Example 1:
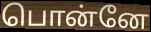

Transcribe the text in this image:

பொன்னே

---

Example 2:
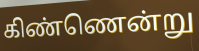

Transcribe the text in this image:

கிண்ணென்று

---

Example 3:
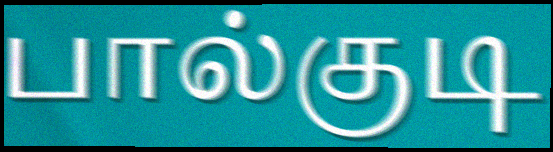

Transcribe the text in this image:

பால்குடி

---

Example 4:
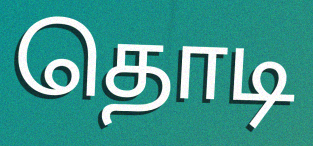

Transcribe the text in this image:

தொடி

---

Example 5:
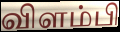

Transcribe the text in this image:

விளம்பி